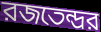
রজতেন্দ্রর